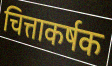
चित्ताकर्षक